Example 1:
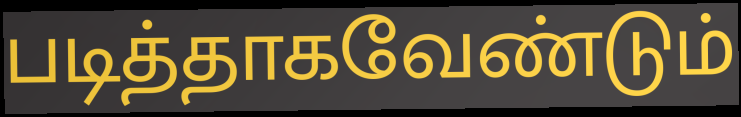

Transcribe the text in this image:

படித்தாகவேண்டும்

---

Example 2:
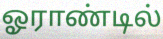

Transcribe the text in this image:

ஓராண்டில்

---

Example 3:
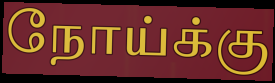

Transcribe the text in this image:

நோய்க்கு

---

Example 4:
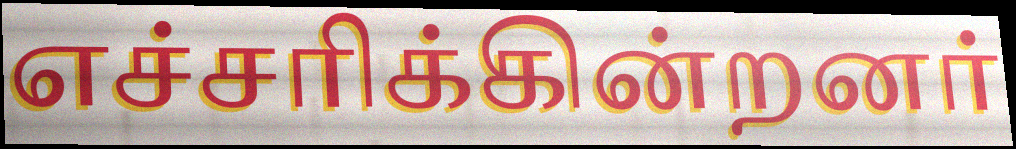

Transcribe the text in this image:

எச்சரிக்கின்றனர்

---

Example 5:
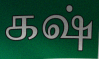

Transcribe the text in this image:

கஷ்